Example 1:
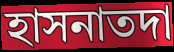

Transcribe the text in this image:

হাসনাতদা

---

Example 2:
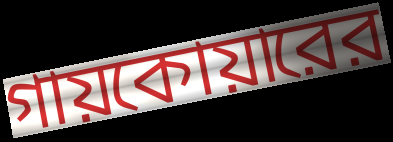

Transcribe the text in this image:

গায়কোয়ারের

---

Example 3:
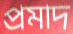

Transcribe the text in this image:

প্রমাদ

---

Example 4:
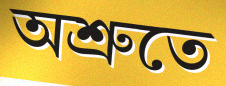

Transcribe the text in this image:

অশ্রুতে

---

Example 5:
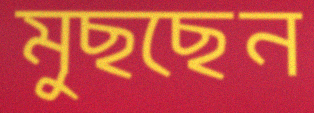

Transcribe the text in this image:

মুছছেন